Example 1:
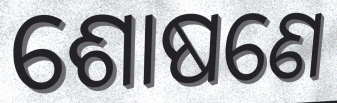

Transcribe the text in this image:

ଶୋଷଣେ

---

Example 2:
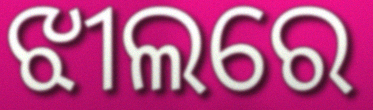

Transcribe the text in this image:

ଝୀଲରେ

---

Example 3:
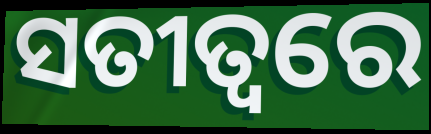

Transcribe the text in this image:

ସତୀତ୍ୱରେ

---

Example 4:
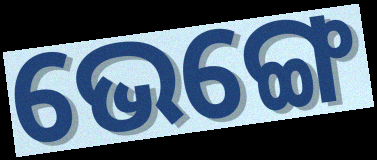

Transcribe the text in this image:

ଭେଙ୍ଗେ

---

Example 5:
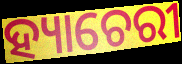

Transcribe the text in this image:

ହ୍ୟାଚେରୀ